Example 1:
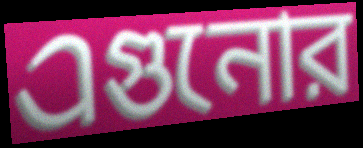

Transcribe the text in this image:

এগুনোর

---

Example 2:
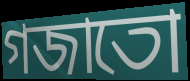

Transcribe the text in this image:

গজাতো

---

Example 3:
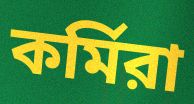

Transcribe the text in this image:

কর্মিরা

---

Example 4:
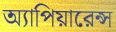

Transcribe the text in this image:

অ্যাপিয়ারেন্স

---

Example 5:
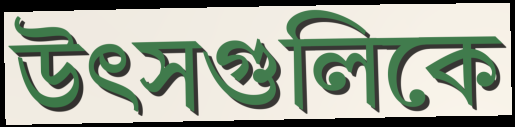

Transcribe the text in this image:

উৎসগুলিকে